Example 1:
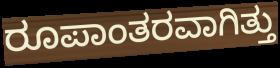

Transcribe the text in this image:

ರೂಪಾಂತರವಾಗಿತ್ತು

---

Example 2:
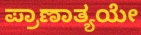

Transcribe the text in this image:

ಪ್ರಾಣಾತ್ಯಯೇ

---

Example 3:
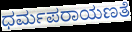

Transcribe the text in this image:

ಧರ್ಮಪರಾಯಣತೆ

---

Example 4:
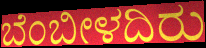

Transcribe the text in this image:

ಬೆಂಬೀಳದಿರು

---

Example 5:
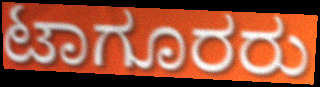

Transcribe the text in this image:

ಟಾಗೂರರು